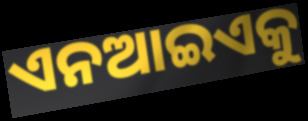
ଏନଆଇଏକୁ